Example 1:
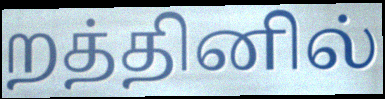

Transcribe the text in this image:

றத்தினில்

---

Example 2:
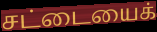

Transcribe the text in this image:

சட்டையைக்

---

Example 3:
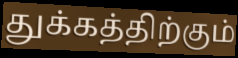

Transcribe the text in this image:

துக்கத்திற்கும்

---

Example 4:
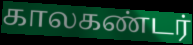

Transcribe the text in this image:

காலகண்டர்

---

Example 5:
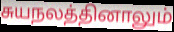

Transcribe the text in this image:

சுயநலத்தினாலும்